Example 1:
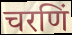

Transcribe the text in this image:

चरणिं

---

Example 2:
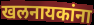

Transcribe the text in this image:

खलनायकांना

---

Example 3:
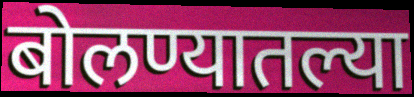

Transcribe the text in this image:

बोलण्यातल्या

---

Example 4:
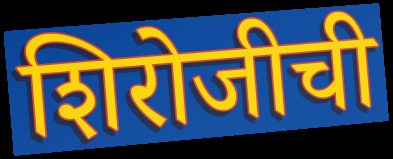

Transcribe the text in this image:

शिरोजीची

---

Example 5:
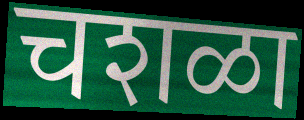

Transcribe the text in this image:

चशळा